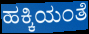
ಹಕ್ಕಿಯಂತೆ